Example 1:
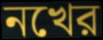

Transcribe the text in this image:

নখের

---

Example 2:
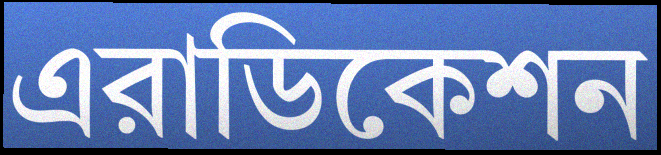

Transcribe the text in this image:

এরাডিকেশন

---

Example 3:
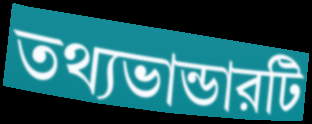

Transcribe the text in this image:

তথ্যভান্ডারটি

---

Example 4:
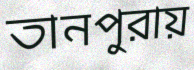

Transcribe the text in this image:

তানপুরায়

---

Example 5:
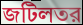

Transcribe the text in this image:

জটিলতর